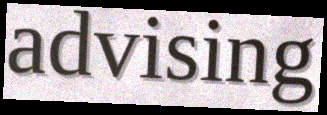
advising